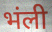
भंली